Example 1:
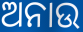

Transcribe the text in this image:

ଅନାଉ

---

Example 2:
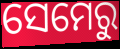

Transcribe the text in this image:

ସେମେରୁ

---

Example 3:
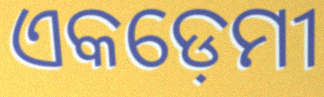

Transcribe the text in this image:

ଏକଡ଼େମୀ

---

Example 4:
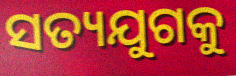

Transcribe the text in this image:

ସତ୍ୟଯୁଗକୁ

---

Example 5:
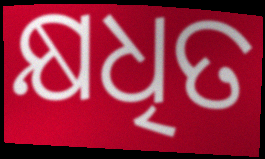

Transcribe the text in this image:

କ୍ଷଧିତ